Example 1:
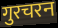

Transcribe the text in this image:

गुरचरन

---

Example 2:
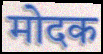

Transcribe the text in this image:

मोदक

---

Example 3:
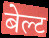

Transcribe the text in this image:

बेल्ट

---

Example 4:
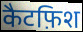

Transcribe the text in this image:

कैटफ़िश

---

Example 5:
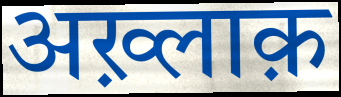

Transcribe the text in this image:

अख़्लाक़